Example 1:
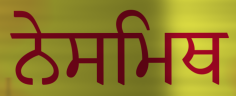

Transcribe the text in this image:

ਨੇਸਮਿਥ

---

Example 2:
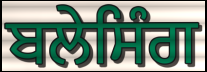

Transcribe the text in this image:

ਬਲੇਸਿੰਗ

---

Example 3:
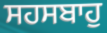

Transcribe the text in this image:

ਸਹਸਬਾਹੁ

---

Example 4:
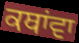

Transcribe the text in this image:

ਕਥਾਂਵਾ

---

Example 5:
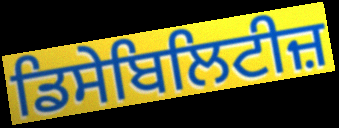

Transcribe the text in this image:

ਡਿਸੇਬਿਲਿਟੀਜ਼